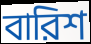
বারিশ